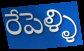
రేపెళ్ళి